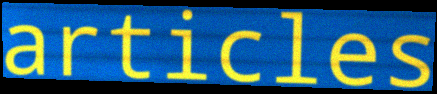
articles